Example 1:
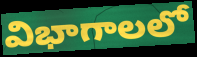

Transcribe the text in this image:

విభాగాలలో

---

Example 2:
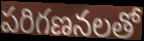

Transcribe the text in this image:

పరిగణనలతో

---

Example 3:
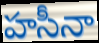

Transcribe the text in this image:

హసీనా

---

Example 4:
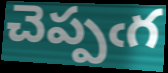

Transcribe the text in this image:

చెప్పఁగ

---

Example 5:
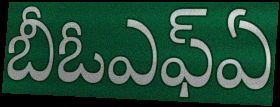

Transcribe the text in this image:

బీఓఎఫ్ఏ